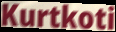
Kurtkoti